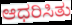
ಆಧರಿಸಿತು